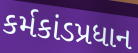
કર્મકાંડપ્રધાન